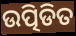
ଉତ୍ପିଡିତ